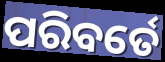
ପରିବର୍ତେ